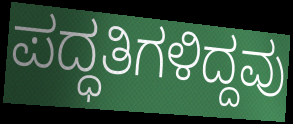
ಪದ್ಧತಿಗಳಿದ್ದವು